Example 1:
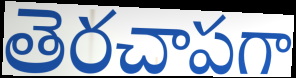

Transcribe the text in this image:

తెరచాపగా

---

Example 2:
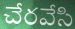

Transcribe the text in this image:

చేరవేసి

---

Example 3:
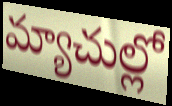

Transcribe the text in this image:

మ్యాచుల్లో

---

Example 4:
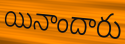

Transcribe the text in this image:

యినాందారు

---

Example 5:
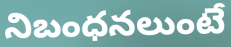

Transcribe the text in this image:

నిబంధనలుంటే